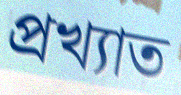
প্রখ্যাত